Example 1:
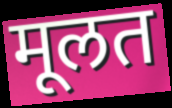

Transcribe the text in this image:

मूलत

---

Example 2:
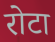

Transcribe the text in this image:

रोटा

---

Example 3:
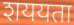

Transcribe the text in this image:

शययता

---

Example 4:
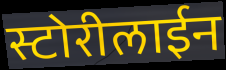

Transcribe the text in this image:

स्टोरीलाईन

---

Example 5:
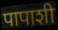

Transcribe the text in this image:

पापाशी